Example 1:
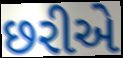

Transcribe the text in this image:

છરીએ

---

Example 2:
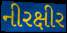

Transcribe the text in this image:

નીરક્ષીર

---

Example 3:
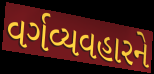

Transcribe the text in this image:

વર્ગવ્યવહારને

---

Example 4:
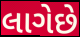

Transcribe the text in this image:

લાગેછે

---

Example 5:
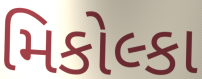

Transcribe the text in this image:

મિકોલ્કા